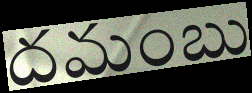
దమంబు